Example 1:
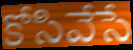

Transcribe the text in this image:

కోసివేసే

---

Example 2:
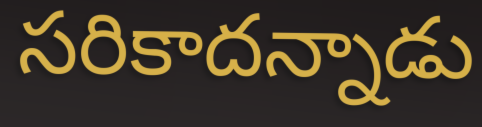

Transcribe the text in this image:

సరికాదన్నాడు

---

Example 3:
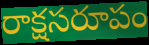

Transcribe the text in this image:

రాక్షసరూపం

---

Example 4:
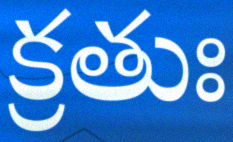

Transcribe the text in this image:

క్రతుః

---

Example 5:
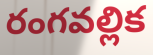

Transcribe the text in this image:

రంగవల్లిక